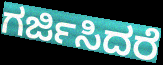
ಗರ್ಜಿಸಿದರೆ